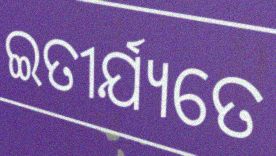
ଇତୀର୍ଯ୍ୟତେ